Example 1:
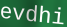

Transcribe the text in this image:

evdhi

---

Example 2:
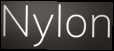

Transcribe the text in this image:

Nylon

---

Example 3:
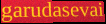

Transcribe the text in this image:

garudasevai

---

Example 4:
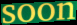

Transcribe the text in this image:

soon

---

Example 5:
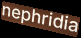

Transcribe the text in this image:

nephridia